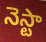
నెస్టా